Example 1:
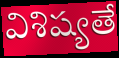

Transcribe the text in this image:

విశిష్యతే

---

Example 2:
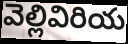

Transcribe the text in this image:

వెల్లివిరియ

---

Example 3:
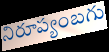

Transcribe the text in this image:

నిరూప్యంబగు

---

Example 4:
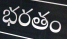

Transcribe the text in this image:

భరతం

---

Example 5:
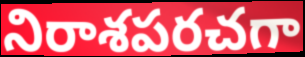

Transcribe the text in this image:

నిరాశపరచగా